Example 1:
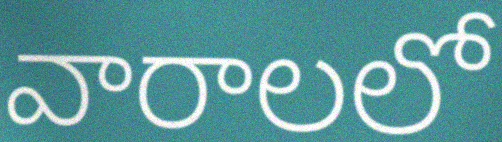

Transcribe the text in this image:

వారాలలో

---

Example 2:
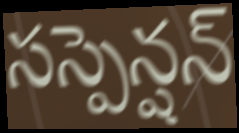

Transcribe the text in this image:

సస్పెన్షన్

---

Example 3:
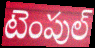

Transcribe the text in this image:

టెంపుల్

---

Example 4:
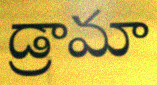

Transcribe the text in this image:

డ్రామా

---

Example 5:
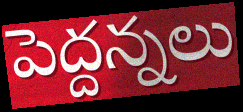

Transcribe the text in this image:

పెద్దన్నలు